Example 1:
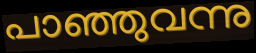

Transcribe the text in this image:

പാഞ്ഞുവന്നു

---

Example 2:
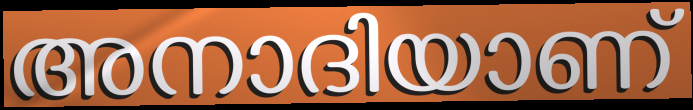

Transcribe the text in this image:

അനാദിയാണ്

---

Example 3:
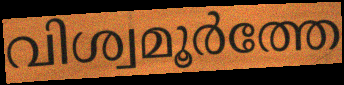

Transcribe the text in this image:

വിശ്വമൂർത്തേ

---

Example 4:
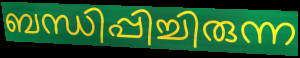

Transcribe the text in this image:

ബന്ധിപ്പിച്ചിരുന്ന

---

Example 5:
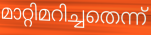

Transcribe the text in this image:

മാറ്റിമറിച്ചതെന്ന്